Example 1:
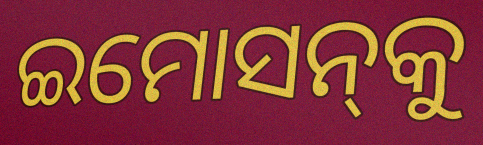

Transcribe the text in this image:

ଇମୋସନ୍‌କୁ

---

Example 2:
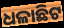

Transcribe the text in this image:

ଧଳାଛିଟ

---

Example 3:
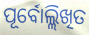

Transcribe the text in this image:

ପୂର୍ବୋଲ୍ଲିଖିତ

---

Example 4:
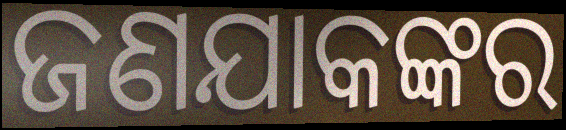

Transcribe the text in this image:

ଜଣଯାକଙ୍କର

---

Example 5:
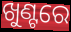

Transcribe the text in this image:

ଖୁଣ୍ଟରେ